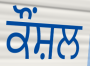
ਕੌਂਸ਼ਲ